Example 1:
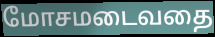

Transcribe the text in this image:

மோசமடைவதை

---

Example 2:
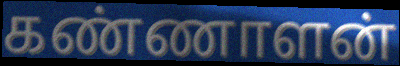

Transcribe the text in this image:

கண்ணாளன்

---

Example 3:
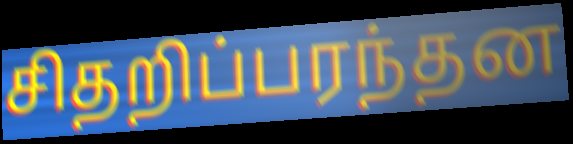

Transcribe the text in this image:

சிதறிப்பரந்தன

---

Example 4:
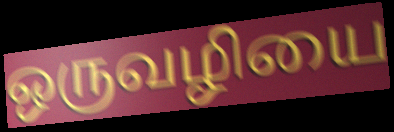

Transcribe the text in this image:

ஒருவழியை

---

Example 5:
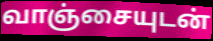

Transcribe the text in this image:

வாஞ்சையுடன்